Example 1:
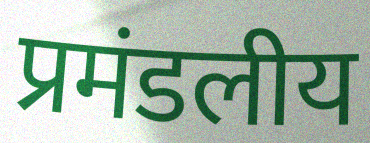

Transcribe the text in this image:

प्रमंडलीय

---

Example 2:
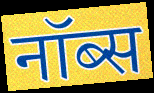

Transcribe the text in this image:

नॉब्स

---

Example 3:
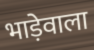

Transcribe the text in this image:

भाड़ेवाला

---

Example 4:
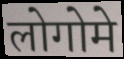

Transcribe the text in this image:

लोगोमे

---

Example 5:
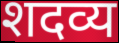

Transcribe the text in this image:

शदव्य